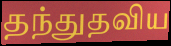
தந்துதவிய